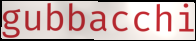
gubbacchi